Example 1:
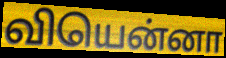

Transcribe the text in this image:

வியென்னா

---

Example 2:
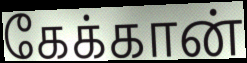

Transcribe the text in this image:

கேக்கான்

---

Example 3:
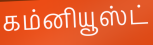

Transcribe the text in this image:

கம்னியூஸ்ட்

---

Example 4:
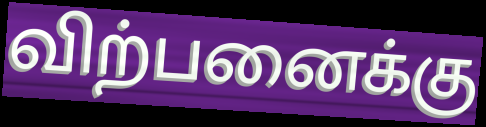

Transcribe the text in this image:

விற்பனைக்கு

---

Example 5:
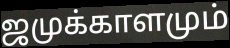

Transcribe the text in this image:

ஜமுக்காளமும்